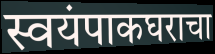
स्वयंपाकघराचा